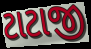
ટાટાજી